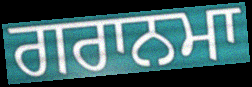
ਗਰਾਨਮਾ